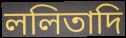
ললিতাদি